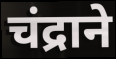
चंद्राने